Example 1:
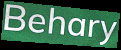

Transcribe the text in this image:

Behary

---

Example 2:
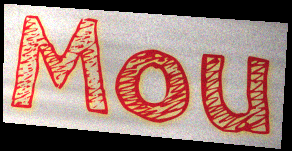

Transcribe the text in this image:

Mou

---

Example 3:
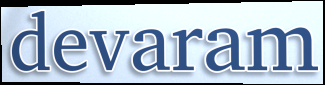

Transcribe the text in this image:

devaram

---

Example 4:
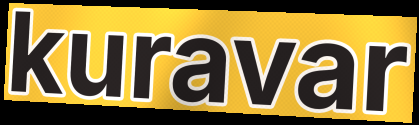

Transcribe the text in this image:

kuravar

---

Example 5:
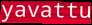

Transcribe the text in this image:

yavattu